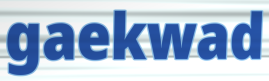
gaekwad